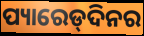
ପ୍ୟାରେଡ୍‌ଦିନର